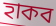
হাকব